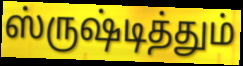
ஸ்ருஷ்டித்தும்